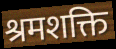
श्रमशक्ति